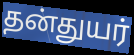
தன்துயர்